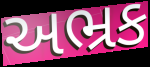
અભ્રક